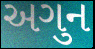
અગુન